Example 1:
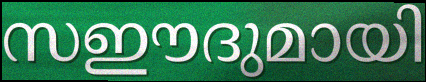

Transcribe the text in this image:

സഈദുമായി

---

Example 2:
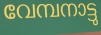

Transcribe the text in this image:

വേമ്പനാട്ടു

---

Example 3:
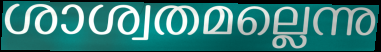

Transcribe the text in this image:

ശാശ്വതമല്ലെന്നു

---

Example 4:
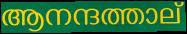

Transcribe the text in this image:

ആനന്ദത്താല്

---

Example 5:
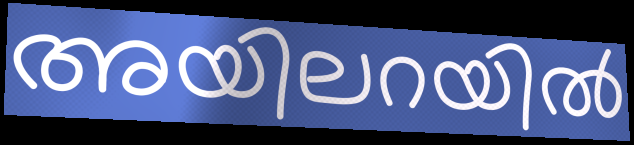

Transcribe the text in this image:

അയിലറയിൽ